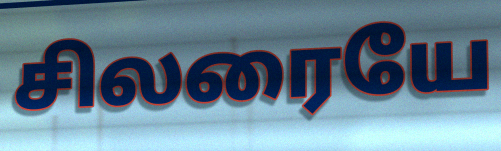
சிலரையே